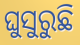
ଘୁସୁରୁଛି